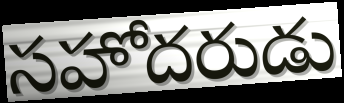
సహోదరుడు